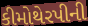
કીમોથેરપીની